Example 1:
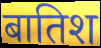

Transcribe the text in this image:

बातिश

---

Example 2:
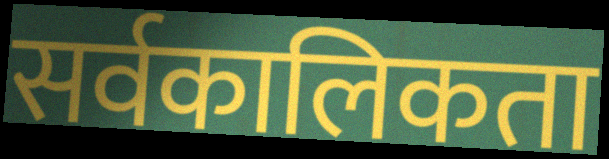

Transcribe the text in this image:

सर्वकालिकता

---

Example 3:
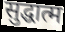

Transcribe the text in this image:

सुद्धात्म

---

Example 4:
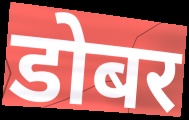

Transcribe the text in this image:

डोबर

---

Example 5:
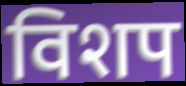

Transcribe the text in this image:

विशप